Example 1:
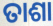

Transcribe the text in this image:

ତାଶା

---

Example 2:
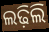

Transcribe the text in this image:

ଲଢ଼ିଲି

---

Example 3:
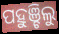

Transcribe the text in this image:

ପହୁଞ୍ଚିଲୁ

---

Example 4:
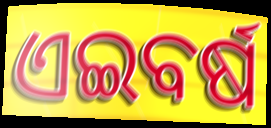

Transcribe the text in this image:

ଏଇବର୍ଷ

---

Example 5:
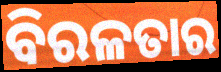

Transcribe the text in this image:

ବିରଳତାର